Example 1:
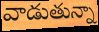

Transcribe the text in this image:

వాడుతున్నా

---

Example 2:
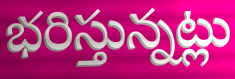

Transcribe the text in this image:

భరిస్తున్నట్లు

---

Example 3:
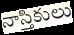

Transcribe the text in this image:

నాస్తికులు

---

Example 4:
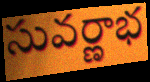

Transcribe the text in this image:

సువర్ణాభ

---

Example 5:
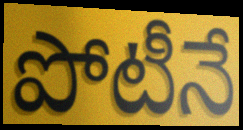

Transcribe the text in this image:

పోటీనే